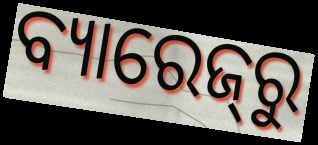
ବ୍ୟାରେଜ୍‌ରୁ